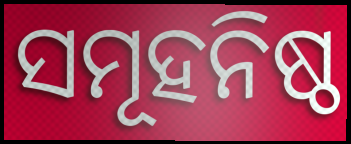
ସମୂହନିଷ୍ଠ